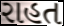
રાહત